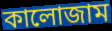
কালোজাম